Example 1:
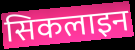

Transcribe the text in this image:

सिकलाइन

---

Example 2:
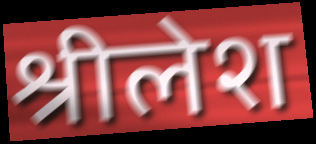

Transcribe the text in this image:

श्रीलेश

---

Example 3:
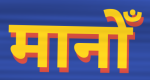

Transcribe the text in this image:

मानोँ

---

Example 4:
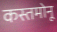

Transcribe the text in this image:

कस्तमोनू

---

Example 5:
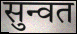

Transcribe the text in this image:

सुन्वत